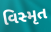
વિસ્મૃત